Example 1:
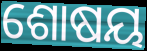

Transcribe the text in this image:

ଶୋଷୟ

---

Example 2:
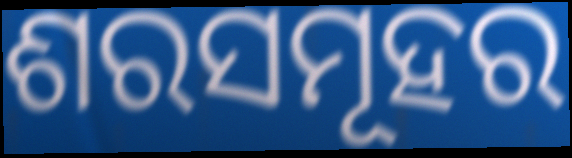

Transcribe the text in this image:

ଶରସମୂହର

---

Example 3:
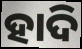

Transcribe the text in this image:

ହାଦି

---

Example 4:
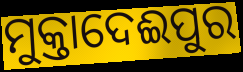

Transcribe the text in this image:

ମୁକ୍ତାଦେଈପୁର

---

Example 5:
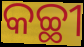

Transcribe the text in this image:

କଚ୍ଛୀ